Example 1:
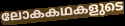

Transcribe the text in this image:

ലോകകഥകളുടെ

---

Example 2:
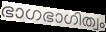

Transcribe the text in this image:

ഭാഗഭാഗിത്വം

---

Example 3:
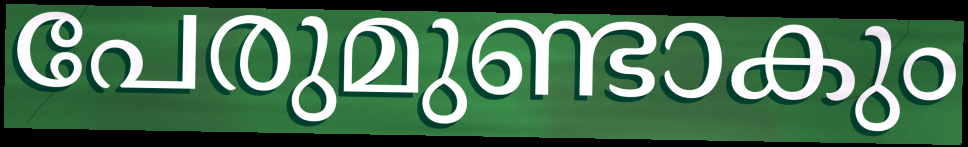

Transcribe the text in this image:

പേരുമുണ്ടാകും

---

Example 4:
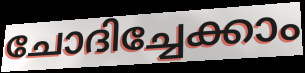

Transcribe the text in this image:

ചോദിച്ചേക്കാം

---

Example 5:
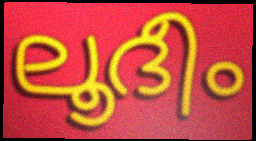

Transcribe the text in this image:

ലൂദീം